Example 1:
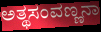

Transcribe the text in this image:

ಅತ್ಥಸಂವಣ್ಣನಾ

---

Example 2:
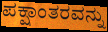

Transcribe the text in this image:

ಪಕ್ಷಾಂತರವನ್ನು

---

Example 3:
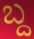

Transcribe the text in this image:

ಬ್ದ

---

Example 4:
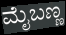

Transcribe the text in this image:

ಮೈಬಣ್ಣ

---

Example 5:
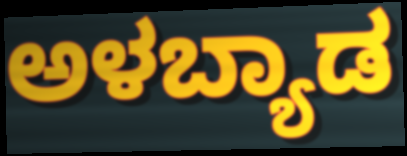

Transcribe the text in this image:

ಅಳಬ್ಯಾಡ